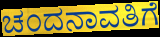
ಚಂದನಾವತಿಗೆ